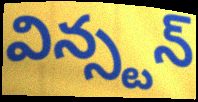
విన్స్టన్